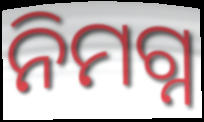
ନିମଗ୍ନ